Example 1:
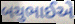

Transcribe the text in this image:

બચુભાઈએ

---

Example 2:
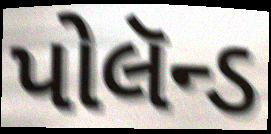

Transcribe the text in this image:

પોલૅન્ડ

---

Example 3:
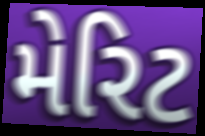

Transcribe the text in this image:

મેરિટ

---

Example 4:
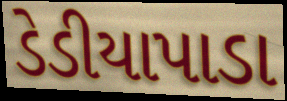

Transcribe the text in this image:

ડેડીયાપાડા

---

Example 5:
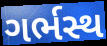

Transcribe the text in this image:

ગર્ભસ્થ